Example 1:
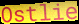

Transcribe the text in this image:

Ostlie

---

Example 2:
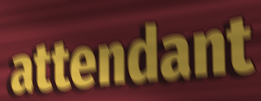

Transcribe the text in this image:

attendant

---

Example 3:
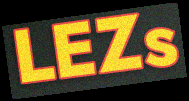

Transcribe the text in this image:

LEZs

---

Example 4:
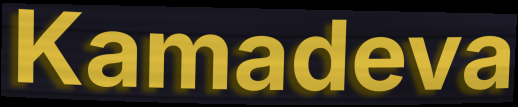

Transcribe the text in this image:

Kamadeva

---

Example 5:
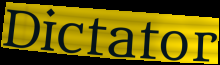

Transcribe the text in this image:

Dictator